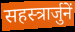
सहस्त्रार्जुनें